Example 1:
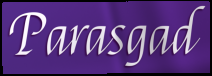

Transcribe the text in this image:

Parasgad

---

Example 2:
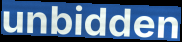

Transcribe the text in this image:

unbidden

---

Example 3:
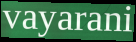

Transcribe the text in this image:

vayarani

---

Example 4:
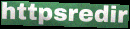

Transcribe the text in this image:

httpsredir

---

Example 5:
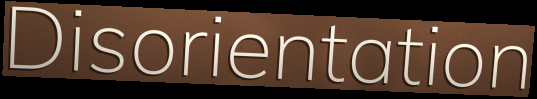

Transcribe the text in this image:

Disorientation